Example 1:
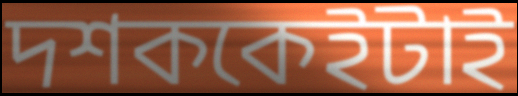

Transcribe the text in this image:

দশককেইটাই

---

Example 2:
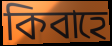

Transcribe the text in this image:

কিবাহে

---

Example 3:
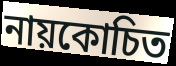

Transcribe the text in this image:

নায়কোচিত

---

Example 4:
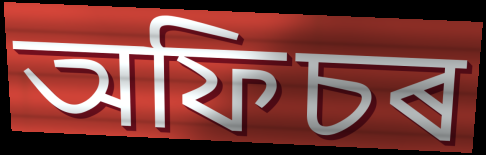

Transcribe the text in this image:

অফিচৰ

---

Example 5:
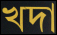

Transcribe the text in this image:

খদা